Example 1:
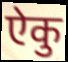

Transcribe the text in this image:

ऐकु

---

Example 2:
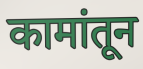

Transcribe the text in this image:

कामांतून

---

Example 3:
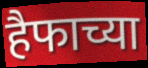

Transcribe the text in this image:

हैफाच्या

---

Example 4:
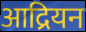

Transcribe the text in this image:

आद्रियन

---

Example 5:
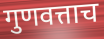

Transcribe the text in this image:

गुणवत्ताच